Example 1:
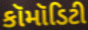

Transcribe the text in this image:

કૉમૉડિટી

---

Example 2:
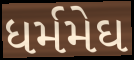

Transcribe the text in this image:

ધર્મમેઘ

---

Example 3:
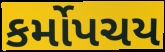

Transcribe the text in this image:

કર્મોપચય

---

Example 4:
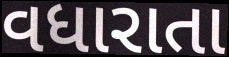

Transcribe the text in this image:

વધારાતા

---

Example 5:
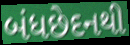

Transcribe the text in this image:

બંધછેદનથી